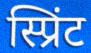
स्प्रिंट